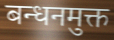
बन्धनमुक्त